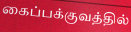
கைப்பக்குவத்தில்